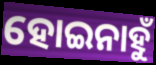
ହୋଇନାହୁଁ